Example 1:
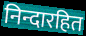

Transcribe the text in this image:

निन्दारहित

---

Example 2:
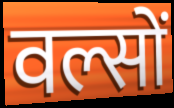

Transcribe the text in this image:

वल्सों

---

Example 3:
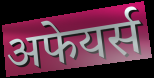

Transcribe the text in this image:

अफेयर्स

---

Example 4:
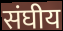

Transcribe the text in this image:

संघीय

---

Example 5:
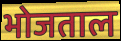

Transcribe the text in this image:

भोजताल